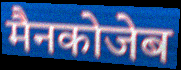
मैनकोजेब